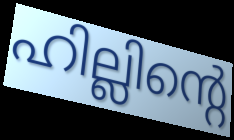
ഹില്ലിന്റെ